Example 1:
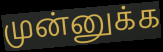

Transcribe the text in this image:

முன்னுக்க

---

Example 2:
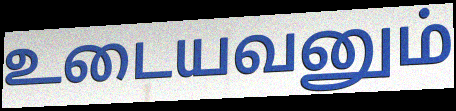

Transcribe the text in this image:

உடையவனும்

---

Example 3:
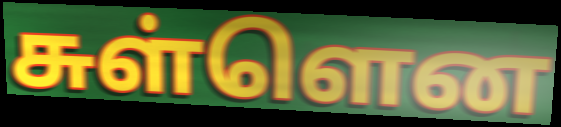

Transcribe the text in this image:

சுள்ளென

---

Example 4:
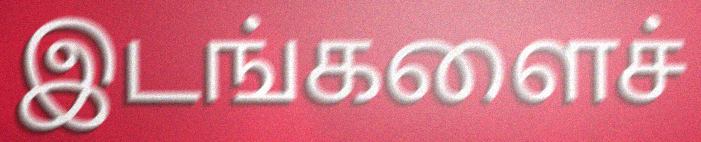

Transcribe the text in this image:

இடங்களைச்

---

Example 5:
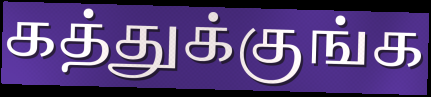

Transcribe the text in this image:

கத்துக்குங்க